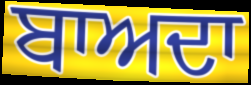
ਬਾਅਦਾ